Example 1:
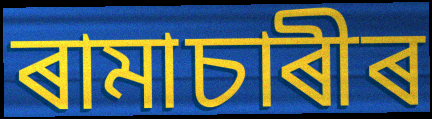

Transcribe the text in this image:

ৰামাচাৰীৰ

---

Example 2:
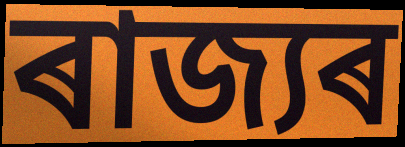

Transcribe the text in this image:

ৰাজ্যৰ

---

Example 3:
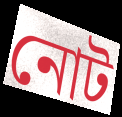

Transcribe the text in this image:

নোট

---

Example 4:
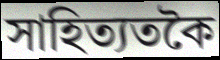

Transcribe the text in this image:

সাহিত্যতকৈ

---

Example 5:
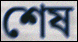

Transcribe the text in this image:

শেষ